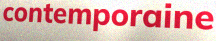
contemporaine